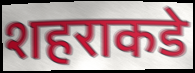
शहराकडे